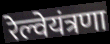
रेल्वेयंत्रणा